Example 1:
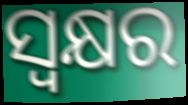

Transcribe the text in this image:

ସ୍ୱକ୍ଷର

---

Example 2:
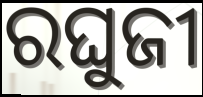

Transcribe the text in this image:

ରଘୁଜୀ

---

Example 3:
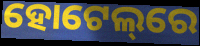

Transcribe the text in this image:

ହୋଟେଲ୍‌ରେ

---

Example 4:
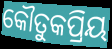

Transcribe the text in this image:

କୌତୁକପ୍ରିୟ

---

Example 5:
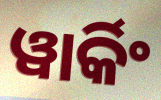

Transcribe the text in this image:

ୱାର୍କିଂ